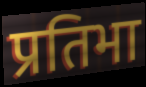
प्रतिभा